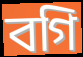
বগি